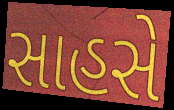
સાહસે